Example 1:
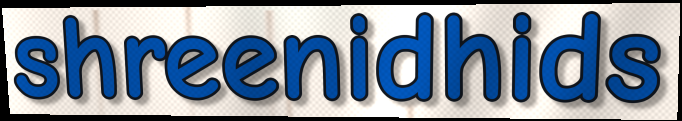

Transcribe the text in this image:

shreenidhids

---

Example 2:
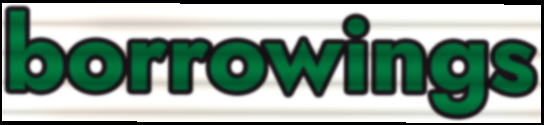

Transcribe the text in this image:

borrowings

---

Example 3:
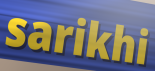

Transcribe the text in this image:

sarikhi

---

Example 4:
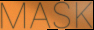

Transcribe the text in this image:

MASK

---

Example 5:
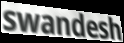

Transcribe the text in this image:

swandesh